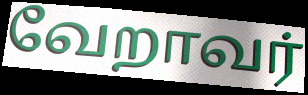
வேறாவர்